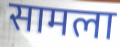
सामला